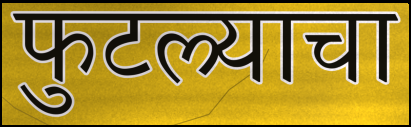
फुटल्याचा